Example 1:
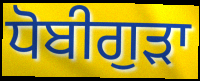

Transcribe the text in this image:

ਧੋਬੀਗੁੜਾ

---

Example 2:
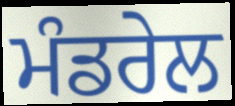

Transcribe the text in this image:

ਮੰਡਰੇਲ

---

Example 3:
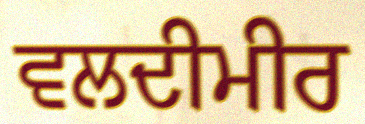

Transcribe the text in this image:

ਵਲਦੀਮੀਰ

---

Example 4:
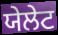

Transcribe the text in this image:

ਯੇਲੇਟ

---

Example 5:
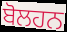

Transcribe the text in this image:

ਬੋਲਹਨ